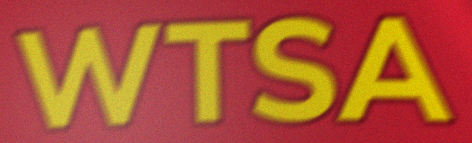
WTSA